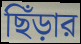
ছিঁড়ার